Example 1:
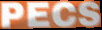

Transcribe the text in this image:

PECS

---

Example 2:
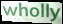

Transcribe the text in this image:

wholly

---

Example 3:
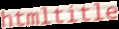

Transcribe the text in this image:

htmltitle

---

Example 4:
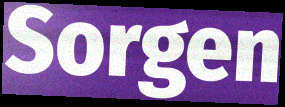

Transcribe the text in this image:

Sorgen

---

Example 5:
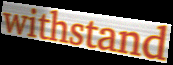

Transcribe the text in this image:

withstand